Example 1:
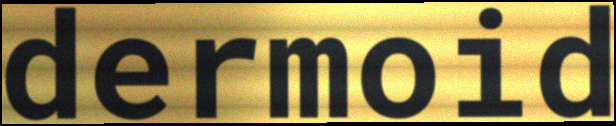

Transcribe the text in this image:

dermoid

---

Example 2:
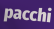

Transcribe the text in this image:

pacchi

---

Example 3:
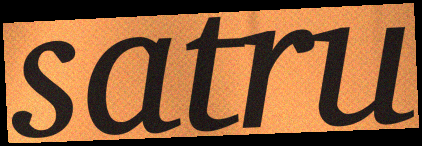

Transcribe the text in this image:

satru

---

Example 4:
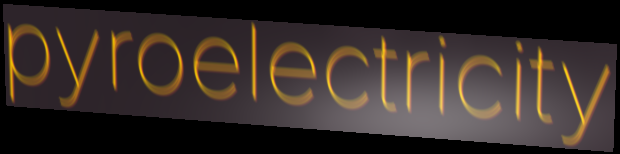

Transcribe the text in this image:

pyroelectricity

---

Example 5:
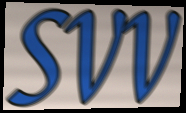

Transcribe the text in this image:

svv